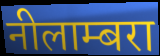
नीलाम्बरा